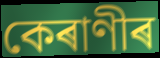
কেৰাণীৰ